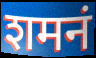
शमनं